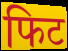
फिट